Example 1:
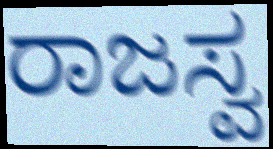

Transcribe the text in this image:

ರಾಜಸ್ವ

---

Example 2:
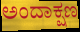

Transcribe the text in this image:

ಅಂದಾಕ್ಷಣ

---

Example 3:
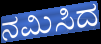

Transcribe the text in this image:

ನಮಿಸಿದ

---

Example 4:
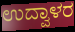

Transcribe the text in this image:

ಉದ್ವಾಳರ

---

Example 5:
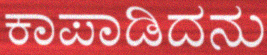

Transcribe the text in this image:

ಕಾಪಾಡಿದನು